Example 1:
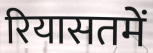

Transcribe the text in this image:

रियासतमें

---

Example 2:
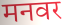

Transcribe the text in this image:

मनवर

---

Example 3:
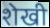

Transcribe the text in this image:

शेखी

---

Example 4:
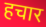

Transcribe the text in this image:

हचार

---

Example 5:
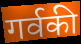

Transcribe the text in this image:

गर्वकी